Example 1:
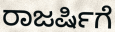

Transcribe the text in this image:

ರಾಜರ್ಷಿಗೆ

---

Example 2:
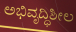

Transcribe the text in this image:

ಅಭಿವೃದ್ಧಿಶೀಲ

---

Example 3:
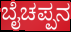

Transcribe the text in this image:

ಬೈಚಪ್ಪನ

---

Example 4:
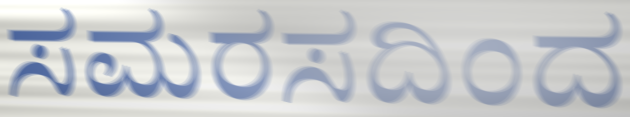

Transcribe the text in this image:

ಸಮರಸದಿಂದ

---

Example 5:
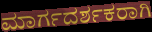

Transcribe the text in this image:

ಮಾರ್ಗದರ್ಶಕರಾಗಿ